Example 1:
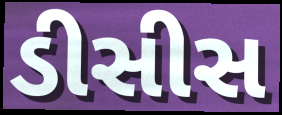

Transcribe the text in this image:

ડીસીસ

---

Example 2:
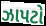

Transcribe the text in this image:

ઝાપટો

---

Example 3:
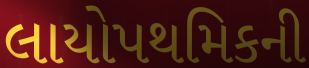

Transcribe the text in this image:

લાયોપથમિકની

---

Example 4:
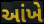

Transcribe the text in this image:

આંખે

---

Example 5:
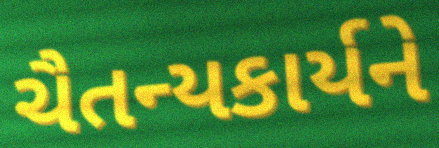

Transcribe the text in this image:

ચૈતન્યકાર્યને